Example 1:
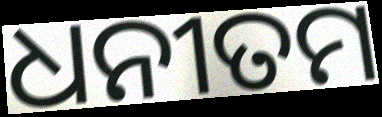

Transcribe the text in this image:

ଧନୀତମ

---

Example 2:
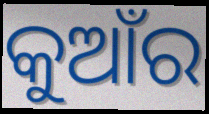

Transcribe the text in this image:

କୁଆଁର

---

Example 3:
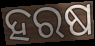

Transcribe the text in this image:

ହରଷ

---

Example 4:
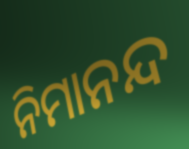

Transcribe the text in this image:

ନିମାନନ୍ଦ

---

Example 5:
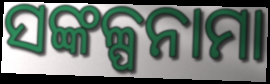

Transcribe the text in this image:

ସଙ୍କଳ୍ପନାମା